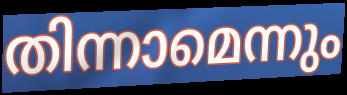
തിന്നാമെന്നും